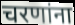
चरणांना